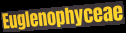
Euglenophyceae